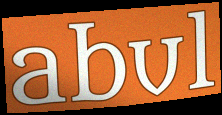
abul